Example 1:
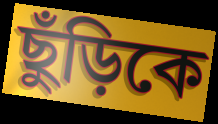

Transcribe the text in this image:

ছুঁড়িকে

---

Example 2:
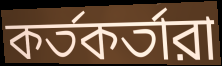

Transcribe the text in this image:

কর্তকর্তারা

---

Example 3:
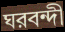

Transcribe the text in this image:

ঘরবন্দী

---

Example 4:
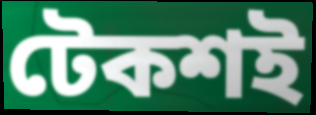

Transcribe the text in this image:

টেকশই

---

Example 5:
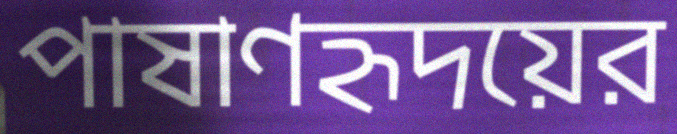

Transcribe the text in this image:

পাষাণহৃদয়ের